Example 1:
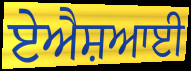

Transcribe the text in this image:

ਏਐਸ਼ਆਈ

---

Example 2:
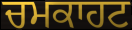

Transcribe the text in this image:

ਚਮਕਾਹਟ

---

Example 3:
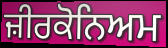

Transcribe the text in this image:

ਜ਼ੀਰਕੋਨਿਅਮ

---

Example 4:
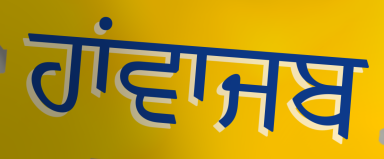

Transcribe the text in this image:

ਹਾਂਵਾਜਬ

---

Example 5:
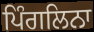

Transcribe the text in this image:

ਪਿੰਗਲਿਨਾ